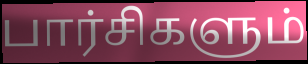
பார்சிகளும்